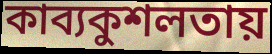
কাব্যকুশলতায়